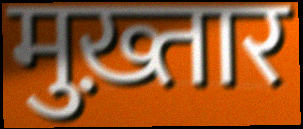
मुख़्तार